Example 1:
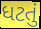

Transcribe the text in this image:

ધટતું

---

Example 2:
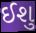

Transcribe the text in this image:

ઈશુ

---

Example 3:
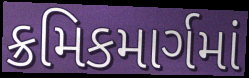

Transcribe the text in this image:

ક્રમિકમાર્ગમાં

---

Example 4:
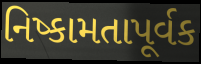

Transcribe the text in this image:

નિષ્કામતાપૂર્વક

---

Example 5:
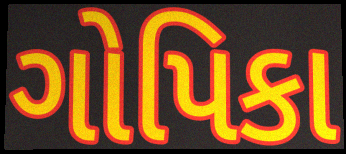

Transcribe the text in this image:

ગોપિકા